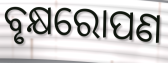
ବୃକ୍ଷରୋପଣ